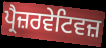
ਪ੍ਰੈਜ਼ਰਵੇਟਿਵਜ਼